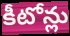
కీటోన్లు